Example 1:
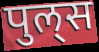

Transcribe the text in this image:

पुल्स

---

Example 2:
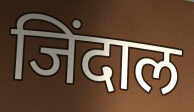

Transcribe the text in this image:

जिंदाल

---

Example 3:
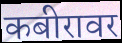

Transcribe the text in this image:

कबीरावर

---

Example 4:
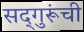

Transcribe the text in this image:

सद्‌गुरूंची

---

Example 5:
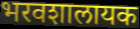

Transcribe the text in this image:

भरवशालायक